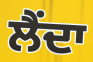
ਲੈਂਦਾ